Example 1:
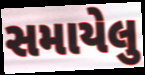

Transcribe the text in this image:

સમાયેલુ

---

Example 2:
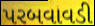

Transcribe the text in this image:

પરબવાવડી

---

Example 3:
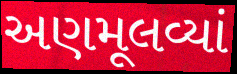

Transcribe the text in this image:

અણમૂલવ્યાં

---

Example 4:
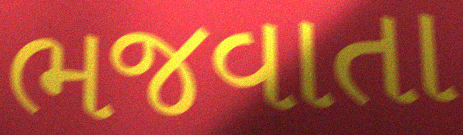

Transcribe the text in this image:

ભજવાતા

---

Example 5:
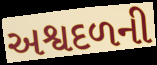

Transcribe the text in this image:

અશ્વદળની